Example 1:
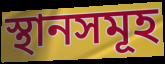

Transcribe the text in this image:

স্থানসমূহ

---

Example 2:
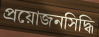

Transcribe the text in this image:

প্রয়োজনসিদ্ধি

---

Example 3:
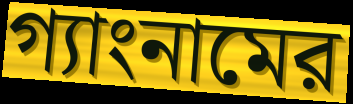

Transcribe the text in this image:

গ্যাংনামের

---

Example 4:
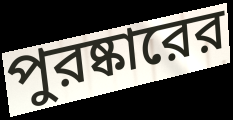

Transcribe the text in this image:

পুরষ্কারের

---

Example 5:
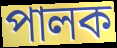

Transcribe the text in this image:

পালক